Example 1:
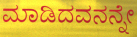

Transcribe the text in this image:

ಮಾಡಿದವನನ್ನೇ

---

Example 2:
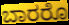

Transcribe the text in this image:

ಬಾರರೊ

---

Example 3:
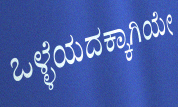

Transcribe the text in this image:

ಒಳ್ಳೆಯದಕ್ಕಾಗಿಯೇ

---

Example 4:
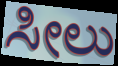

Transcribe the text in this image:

ಸೀಲು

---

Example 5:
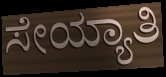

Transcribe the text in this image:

ಸೇಯ್ಯಾತಿ